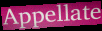
Appellate